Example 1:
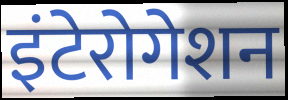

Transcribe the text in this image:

इंटेरोगेशन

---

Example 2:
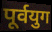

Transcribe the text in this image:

पूर्वयुग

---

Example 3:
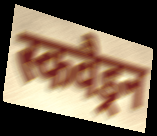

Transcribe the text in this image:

स्कवैड्रन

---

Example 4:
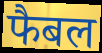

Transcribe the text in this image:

फैबल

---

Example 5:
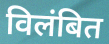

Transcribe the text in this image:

विलंबित